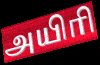
அயிரி